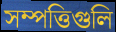
সম্পত্তিগুলি